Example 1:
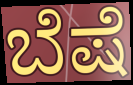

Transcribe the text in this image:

ಬೆಷೆ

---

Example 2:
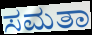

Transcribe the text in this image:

ಸಮತಾ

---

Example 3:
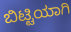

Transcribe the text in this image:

ಬಿಟ್ಟಿಯಾಗಿ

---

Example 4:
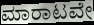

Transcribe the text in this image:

ಮಾರಾಟವೇ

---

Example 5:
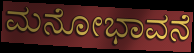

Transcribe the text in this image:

ಮನೋಭಾವನೆ